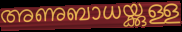
അണുബാധയ്ക്കുള്ള